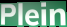
Plein